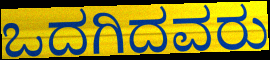
ಒದಗಿದವರು